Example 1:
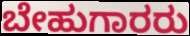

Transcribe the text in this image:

ಬೇಹುಗಾರರು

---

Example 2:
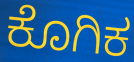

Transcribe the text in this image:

ಕೊಗಿಕ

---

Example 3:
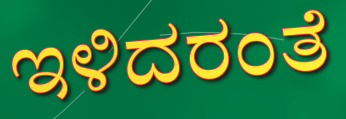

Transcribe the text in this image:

ಇಳಿದರಂತೆ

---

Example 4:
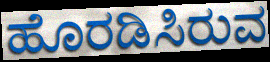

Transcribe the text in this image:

ಹೊರಡಿಸಿರುವ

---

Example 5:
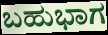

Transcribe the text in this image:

ಬಹುಭಾಗ